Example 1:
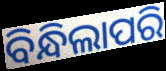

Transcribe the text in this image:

ବିନ୍ଧିଲାପରି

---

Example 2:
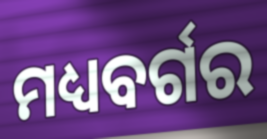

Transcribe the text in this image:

ମଧ୍ୟବର୍ଗର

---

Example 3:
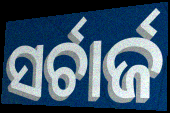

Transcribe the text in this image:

ସର୍ଚାର୍ଜ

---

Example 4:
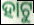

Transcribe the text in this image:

ହାଟୁ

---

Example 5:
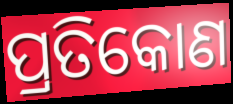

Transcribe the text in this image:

ପ୍ରତିକୋଣ